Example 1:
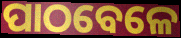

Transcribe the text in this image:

ପାଠବେଳେ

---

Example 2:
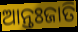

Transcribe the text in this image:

ଆନ୍ତଃଜାତି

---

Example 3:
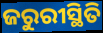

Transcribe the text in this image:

ଜରୁରୀସ୍ଥିତି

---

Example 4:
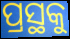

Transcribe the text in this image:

ପ୍ରସ୍ଥକୁ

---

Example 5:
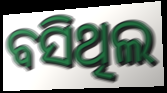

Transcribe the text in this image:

ବସିଥିଲ